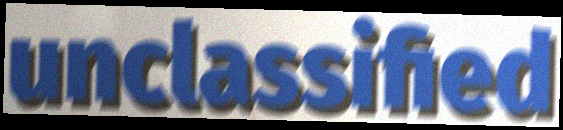
unclassified